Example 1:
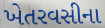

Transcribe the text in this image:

ખેતરવસીના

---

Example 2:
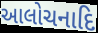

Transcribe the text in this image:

આલોચનાદિ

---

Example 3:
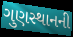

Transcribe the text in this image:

ગુણસ્થાનની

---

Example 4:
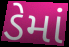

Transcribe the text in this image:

ડેમાં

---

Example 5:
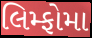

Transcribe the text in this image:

લિમ્ફોમા